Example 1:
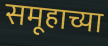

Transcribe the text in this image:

समूहाच्या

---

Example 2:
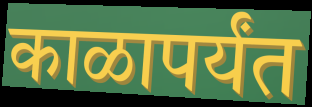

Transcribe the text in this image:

काळापर्यंत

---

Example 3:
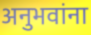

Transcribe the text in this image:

अनुभवांना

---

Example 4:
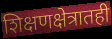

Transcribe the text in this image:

शिक्षणक्षेत्रातही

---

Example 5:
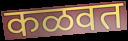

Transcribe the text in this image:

कळवत